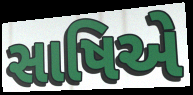
સાષિએ